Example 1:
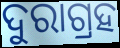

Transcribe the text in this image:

ଦୁରାଗ୍ରହ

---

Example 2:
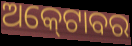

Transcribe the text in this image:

ଅକ୍‍ଟୋବର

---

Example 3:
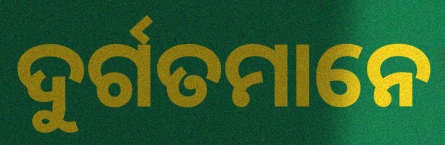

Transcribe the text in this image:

ଦୁର୍ଗତମାନେ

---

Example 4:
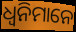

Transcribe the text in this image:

ଧ୍ୱନିମାନେ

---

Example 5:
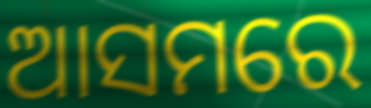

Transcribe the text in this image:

ଆସମରେ